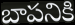
బాపనికి